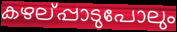
കഴല്പ്പാടുപോലും